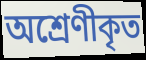
অশ্ৰেণীকৃত